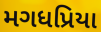
મગધપ્રિયા